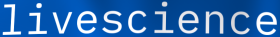
livescience